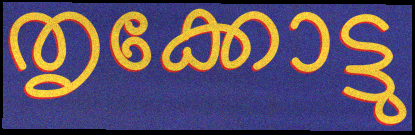
തൃക്കോട്ടു